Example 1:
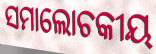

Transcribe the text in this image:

ସମାଲୋଚକୀୟ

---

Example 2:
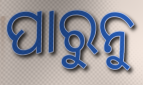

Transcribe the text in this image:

ପାରୁନୁ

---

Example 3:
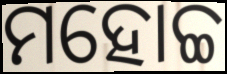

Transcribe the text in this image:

ମହୋଚ୍ଚ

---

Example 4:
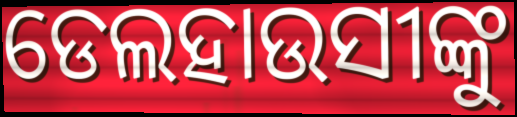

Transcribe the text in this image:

ଡେଲହାଉସୀଙ୍କୁ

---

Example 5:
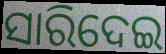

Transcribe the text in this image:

ସାରିଦେଇ